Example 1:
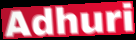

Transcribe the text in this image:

Adhuri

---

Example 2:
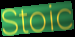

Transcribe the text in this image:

Stoic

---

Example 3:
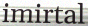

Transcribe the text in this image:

imirtal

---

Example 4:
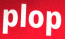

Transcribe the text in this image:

plop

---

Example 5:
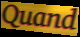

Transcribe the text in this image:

Quand